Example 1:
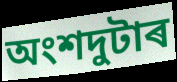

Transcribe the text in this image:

অংশদুটাৰ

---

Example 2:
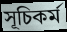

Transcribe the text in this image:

সূচিকৰ্ম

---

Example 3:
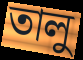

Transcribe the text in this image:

তালু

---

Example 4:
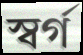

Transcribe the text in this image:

স্বৰ্গ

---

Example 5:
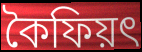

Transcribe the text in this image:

কৈফিয়ৎ